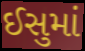
ઈસુમાં